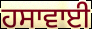
ਹਸਾਵਾਈ